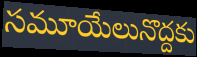
సమూయేలునొద్దకు